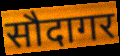
सौदागर